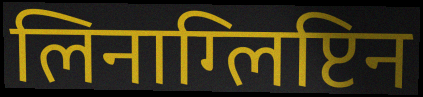
लिनाग्लिप्टिन